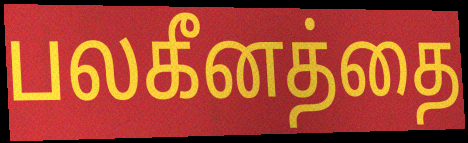
பலகீனத்தை